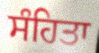
ਸੰਹਿਤਾ